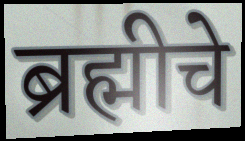
ब्रह्मीचे